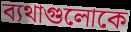
ব্যথাগুলোকে